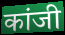
कांजी